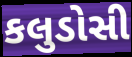
કલુડોસી